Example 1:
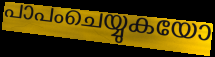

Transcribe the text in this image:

പാപംചെയ്യുകയോ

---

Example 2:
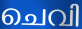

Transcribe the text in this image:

ചെവി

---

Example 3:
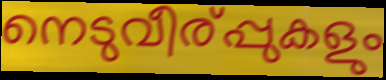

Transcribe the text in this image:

നെടുവീര്പ്പുകളും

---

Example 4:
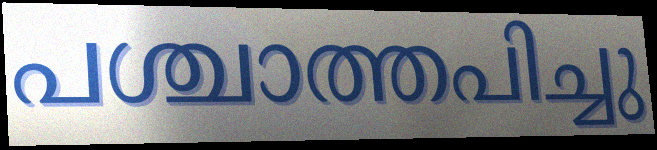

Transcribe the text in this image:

പശ്ചാത്തപിച്ചു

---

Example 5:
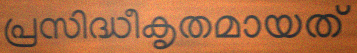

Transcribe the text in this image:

പ്രസിദ്ധീകൃതമായത്